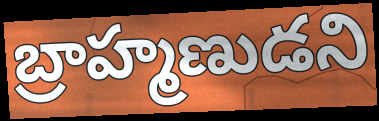
బ్రాహ్మణుడని